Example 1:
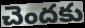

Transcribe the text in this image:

చెందకు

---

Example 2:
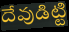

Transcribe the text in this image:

దేవుడిట్టి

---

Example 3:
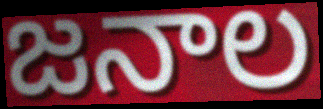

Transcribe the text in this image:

జనాల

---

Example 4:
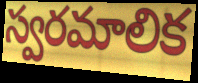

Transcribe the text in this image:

స్వరమాలిక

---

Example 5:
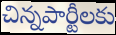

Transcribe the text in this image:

చిన్నపార్టీలకు